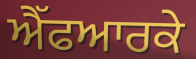
ਐੱਫਆਰਕੇ